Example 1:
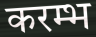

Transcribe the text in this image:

करम्भ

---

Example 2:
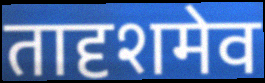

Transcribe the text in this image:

तादृशमेव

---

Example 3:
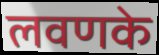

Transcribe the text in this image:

लवणके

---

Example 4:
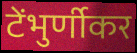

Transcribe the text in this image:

टेंभुर्णीकर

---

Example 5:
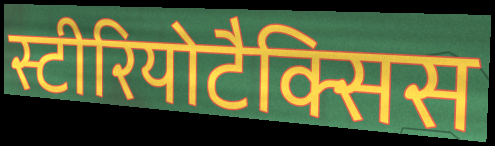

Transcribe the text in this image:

स्टीरियोटैक्सिस